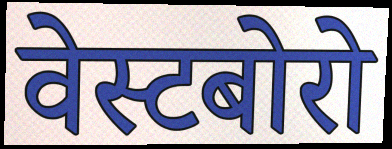
वेस्टबोरो